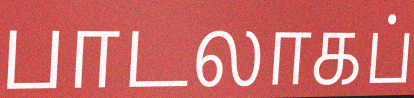
பாடலாகப்